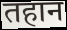
तहान